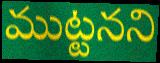
ముట్టనని